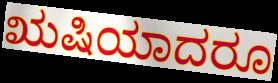
ಋಷಿಯಾದರೂ